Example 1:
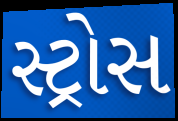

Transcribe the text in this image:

સ્ટ્રોસ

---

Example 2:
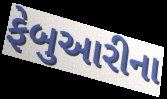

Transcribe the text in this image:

ફેબુઆરીના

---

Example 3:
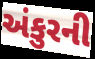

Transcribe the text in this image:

અંકુરની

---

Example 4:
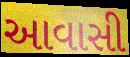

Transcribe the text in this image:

આવાસી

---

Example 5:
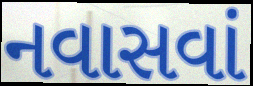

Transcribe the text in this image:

નવાસવાં